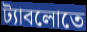
ট্যাবলোতে